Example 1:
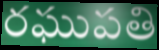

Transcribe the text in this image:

రఘుపతి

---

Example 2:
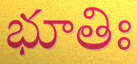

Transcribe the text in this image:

భూతిః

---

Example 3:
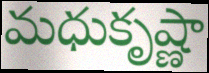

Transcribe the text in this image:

మధుకృష్ణా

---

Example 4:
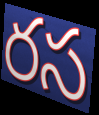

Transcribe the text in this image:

రస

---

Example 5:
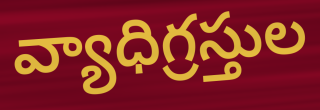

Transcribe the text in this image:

వ్యాధిగ్రస్తుల